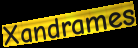
Xandrames